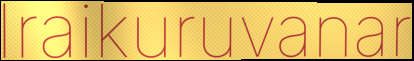
Iraikuruvanar